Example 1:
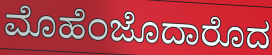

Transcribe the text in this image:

ಮೊಹೆಂಜೊದಾರೊದ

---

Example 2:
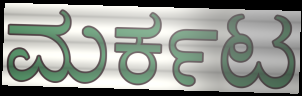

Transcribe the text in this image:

ಮರ್ಕಟ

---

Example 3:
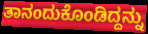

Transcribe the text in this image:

ತಾನಂದುಕೊಂಡಿದ್ದನ್ನು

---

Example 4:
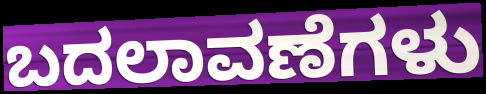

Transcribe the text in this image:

ಬದಲಾವಣೆಗಳು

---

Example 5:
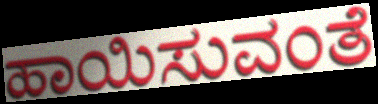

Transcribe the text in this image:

ಹಾಯಿಸುವಂತೆ